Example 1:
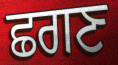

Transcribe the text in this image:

ਛਗਣ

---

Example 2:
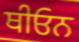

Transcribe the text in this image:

ਥੀਓਨ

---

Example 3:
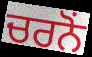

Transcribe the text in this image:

ਚਰਨੋਂ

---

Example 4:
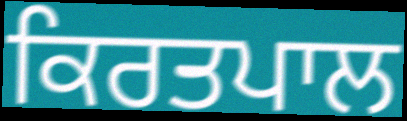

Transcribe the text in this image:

ਕਿਰਤਪਾਲ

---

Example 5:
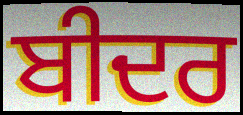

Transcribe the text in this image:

ਬੀਦਰ